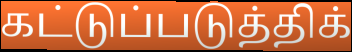
கட்டுப்படுத்திக்